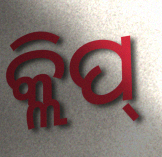
କ୍ଲିପ୍